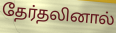
தேர்தலினால்